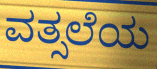
ವತ್ಸಲೆಯ